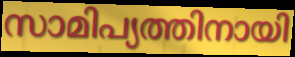
സാമിപ്യത്തിനായി